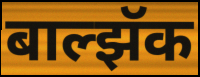
बाल्झॅक